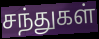
சந்துகள்